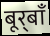
बूर्‌बाँ